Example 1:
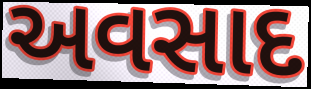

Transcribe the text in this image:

અવસાદ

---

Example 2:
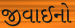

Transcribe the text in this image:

જીવાઈનો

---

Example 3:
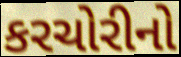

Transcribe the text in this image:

કરચોરીનો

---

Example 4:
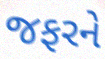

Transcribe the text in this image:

જફરને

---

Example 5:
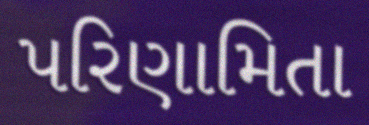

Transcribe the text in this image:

પરિણામિતા